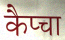
कैप्चा